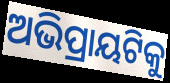
ଅଭିପ୍ରାୟଟିକୁ